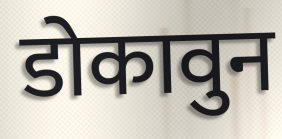
डोकावुन